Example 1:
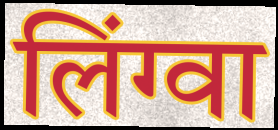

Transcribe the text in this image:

लिंग्वा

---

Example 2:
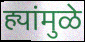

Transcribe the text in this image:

ह्यांमुळे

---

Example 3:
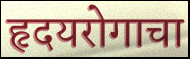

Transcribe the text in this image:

हृदयरोगाचा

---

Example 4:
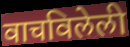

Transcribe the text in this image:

वाचविलेली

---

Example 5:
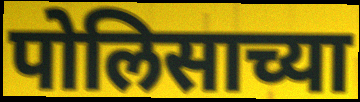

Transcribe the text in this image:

पोलिसाच्या